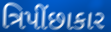
ત્રિપીંછાકાર